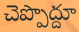
చెప్పొద్దూ